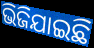
ଭିଜିଯାଇଛି